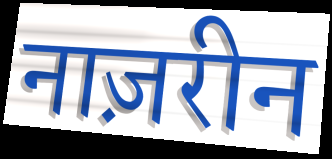
नाज़रीन